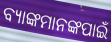
ବ୍ୟାଙ୍କମାନଙ୍କପାଇଁ